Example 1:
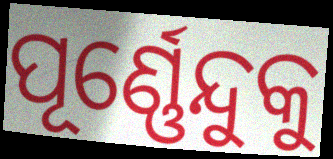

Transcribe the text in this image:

ପୂର୍ଣ୍ଣେନ୍ଦୁକୁ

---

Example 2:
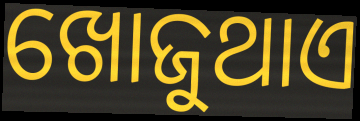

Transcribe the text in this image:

ଖୋଜୁଥାଏ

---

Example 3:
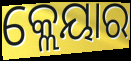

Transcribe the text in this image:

କ୍ଲେୟାର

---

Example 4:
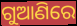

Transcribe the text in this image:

ଗୁଆଣିରେ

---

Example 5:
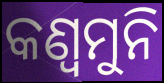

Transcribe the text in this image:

କଣ୍ୱମୁନି